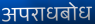
अपराधबोध